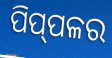
ପିପ୍‌ପଳର